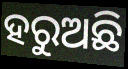
ହରୁଅଛି